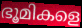
ഭൂമികളെ